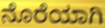
ನೊರೆಯಾಗಿ